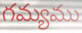
గమ్యము